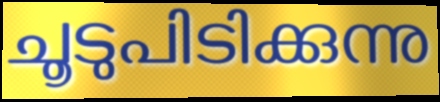
ചൂടുപിടിക്കുന്നു